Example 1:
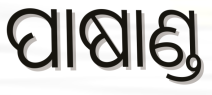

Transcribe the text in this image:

ପାଷାଣ୍ଡ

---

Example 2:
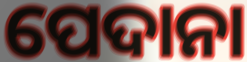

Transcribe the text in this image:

ପେଦାନା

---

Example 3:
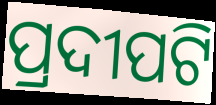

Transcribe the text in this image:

ପ୍ରଦୀପଟି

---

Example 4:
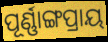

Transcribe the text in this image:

ପୂର୍ଣ୍ଣାଙ୍ଗପ୍ରାୟ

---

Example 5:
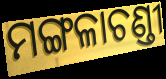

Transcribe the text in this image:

ମଙ୍ଗଳାଚଣ୍ଡୀ